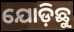
ଯୋଡ଼ିଛୁ